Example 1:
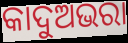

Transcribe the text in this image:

କାଦୁଅଭରା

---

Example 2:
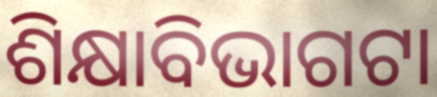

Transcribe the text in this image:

ଶିକ୍ଷାବିଭାଗଟା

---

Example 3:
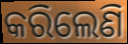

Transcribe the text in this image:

କରିଲେଣି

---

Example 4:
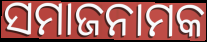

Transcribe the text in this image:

ସମାଜନାମକ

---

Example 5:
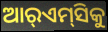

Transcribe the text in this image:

ଆର୍‌ଏମ୍‌ସିକୁ